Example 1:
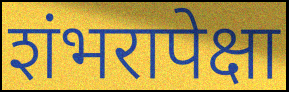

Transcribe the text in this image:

शंभरापेक्षा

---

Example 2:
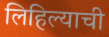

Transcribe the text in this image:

लिहिल्याची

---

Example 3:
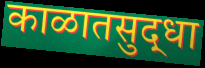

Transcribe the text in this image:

काळातसुद्धा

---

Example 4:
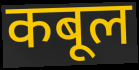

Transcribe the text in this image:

कबूल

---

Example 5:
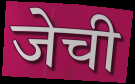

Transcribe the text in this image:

जेची